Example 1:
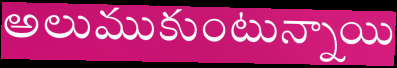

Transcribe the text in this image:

అలుముకుంటున్నాయి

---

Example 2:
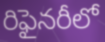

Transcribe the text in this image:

రిఫైనరీలో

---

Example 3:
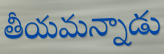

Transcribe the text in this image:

తీయమన్నాడు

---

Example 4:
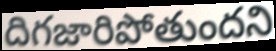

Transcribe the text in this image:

దిగజారిపోతుందని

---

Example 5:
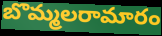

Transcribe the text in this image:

బొమ్మలరామారం